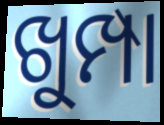
ଖୁମ୍ପା